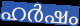
ഹർഷം